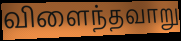
விளைந்தவாறு